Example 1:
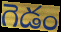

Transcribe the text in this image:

గెడం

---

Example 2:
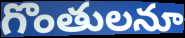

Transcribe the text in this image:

గొంతులనూ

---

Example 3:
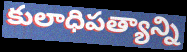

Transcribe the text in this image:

కులాధిపత్యాన్ని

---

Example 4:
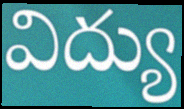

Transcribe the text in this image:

విద్యు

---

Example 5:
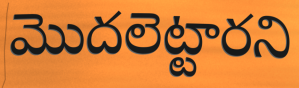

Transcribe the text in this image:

మొదలెట్టారని